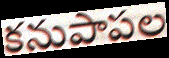
కనుపాపల